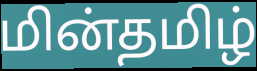
மின்தமிழ்